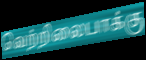
வெற்றிலைபாக்கு